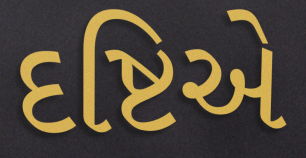
દષ્ટિએ